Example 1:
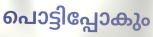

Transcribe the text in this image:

പൊട്ടിപ്പോകും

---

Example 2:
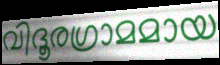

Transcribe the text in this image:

വിദൂരഗ്രാമമായ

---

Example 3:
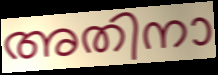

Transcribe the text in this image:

അതിനാ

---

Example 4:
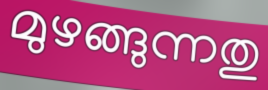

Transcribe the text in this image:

മുഴങ്ങുന്നതു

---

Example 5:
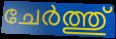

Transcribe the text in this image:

ചേർത്തു്